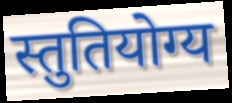
स्तुतियोग्य